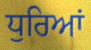
ਧੁਰਿਆਂ